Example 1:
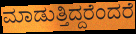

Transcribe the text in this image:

ಮಾಡುತ್ತಿದ್ದರೆಂದರೆ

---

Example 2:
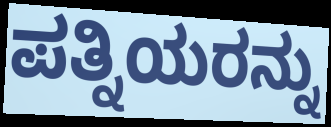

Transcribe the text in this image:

ಪತ್ನಿಯರನ್ನು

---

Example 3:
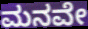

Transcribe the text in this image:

ಮನವೇ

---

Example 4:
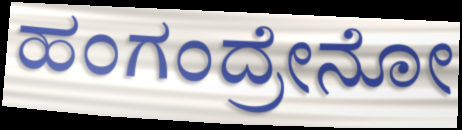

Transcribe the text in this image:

ಹಂಗಂದ್ರೇನೋ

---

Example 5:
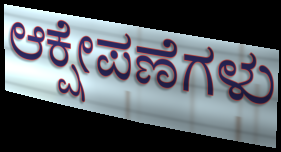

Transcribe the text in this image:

ಆಕ್ಷೇಪಣೆಗಳು